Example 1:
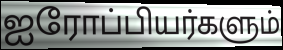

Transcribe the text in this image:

ஐரோப்பியர்களும்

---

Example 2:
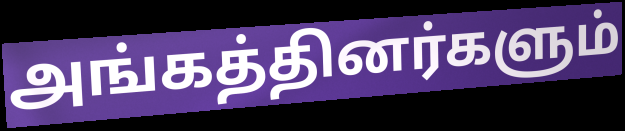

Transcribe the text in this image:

அங்கத்தினர்களும்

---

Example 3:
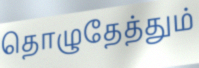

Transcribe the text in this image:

தொழுதேத்தும்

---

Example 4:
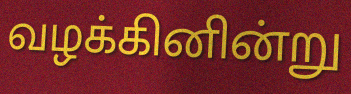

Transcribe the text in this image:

வழக்கினின்று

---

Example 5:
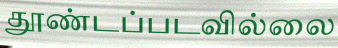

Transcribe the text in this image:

தூண்டப்படவில்லை